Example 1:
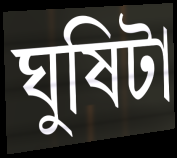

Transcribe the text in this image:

ঘুষিটা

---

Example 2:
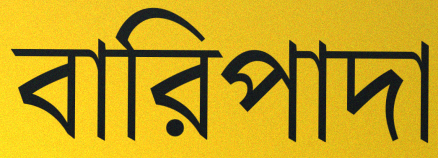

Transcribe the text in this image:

বারিপাদা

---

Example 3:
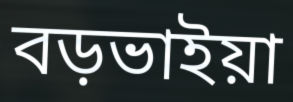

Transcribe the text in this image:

বড়ভাইয়া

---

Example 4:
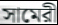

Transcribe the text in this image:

সামেরী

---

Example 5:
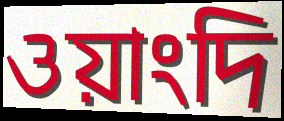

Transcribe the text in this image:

ওয়াংদি